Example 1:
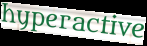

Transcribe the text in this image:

hyperactive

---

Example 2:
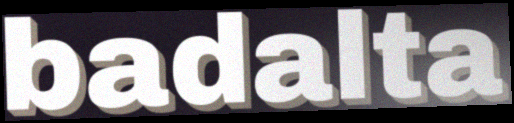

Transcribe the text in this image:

badalta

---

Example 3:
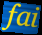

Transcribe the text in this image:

fai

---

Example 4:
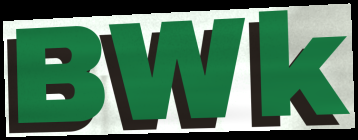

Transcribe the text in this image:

BWk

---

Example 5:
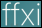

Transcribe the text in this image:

ffxi